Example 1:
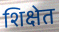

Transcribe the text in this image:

शिक्षेत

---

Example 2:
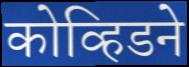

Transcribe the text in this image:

कोव्हिडने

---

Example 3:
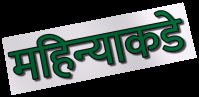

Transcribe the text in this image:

महिन्याकडे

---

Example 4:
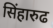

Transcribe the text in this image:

सिंहारुढ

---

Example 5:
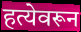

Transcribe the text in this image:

हत्येवरून